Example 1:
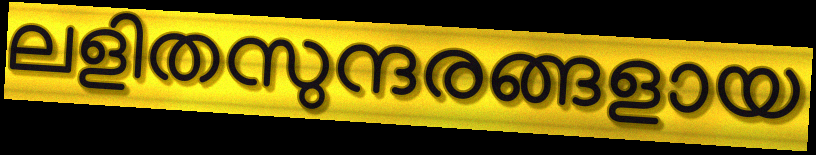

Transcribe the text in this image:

ലളിതസുന്ദരങ്ങളായ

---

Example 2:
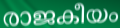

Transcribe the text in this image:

രാജകീയം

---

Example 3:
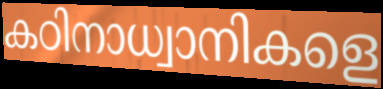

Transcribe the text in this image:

കഠിനാധ്വാനികളെ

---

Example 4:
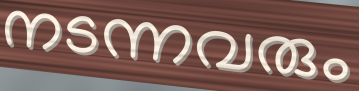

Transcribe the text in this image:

നടന്നവരും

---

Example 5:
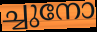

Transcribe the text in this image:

ച്ചുനോ